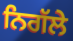
ਨਿਗੱਲੇ